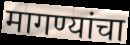
मागण्यांचा